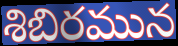
శిబిరమున